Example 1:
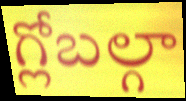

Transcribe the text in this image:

గ్లోబల్గా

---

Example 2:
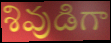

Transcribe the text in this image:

శివుడిగా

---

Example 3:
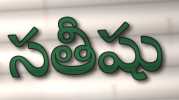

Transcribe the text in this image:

సతీషు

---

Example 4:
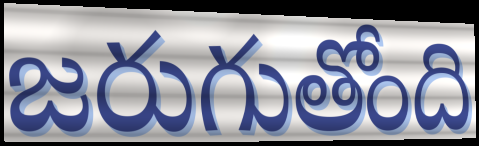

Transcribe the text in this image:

జరుగుతోంది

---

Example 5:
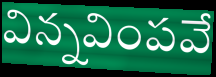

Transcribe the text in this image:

విన్నవింపవే